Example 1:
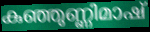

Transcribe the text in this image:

കുഞ്ഞുണ്ണിമാഷ്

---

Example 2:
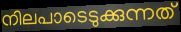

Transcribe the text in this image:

നിലപാടെടുക്കുന്നത്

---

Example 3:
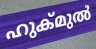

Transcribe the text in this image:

ഹുക്മുൽ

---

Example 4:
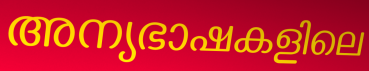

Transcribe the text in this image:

അന്യഭാഷകളിലെ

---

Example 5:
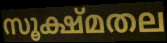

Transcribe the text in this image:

സൂക്ഷ്മതല